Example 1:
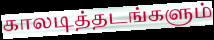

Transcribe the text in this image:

காலடித்தடங்களும்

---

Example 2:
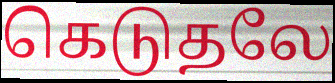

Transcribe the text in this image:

கெடுதலே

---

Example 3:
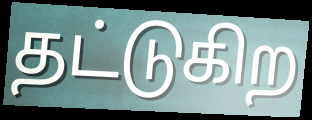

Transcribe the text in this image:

தட்டுகிற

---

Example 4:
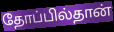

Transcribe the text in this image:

தோப்பில்தான்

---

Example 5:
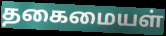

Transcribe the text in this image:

தகைமையள்